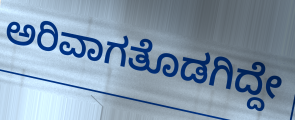
ಅರಿವಾಗತೊಡಗಿದ್ದೇ